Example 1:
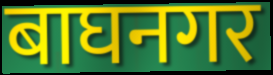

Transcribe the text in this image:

बाघनगर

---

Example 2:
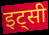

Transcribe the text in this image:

इट्सी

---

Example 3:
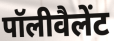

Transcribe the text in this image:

पॉलीवैलेंट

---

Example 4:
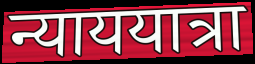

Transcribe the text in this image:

न्याययात्रा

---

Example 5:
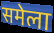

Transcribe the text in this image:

समेला